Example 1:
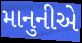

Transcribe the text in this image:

માનુનીએ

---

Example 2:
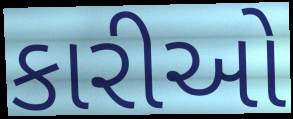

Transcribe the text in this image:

કારીઓ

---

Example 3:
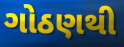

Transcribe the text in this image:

ગોઠણથી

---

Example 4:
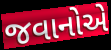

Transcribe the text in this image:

જવાનોએ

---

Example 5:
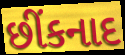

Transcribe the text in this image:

છીંકનાદ